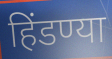
हिंडण्या